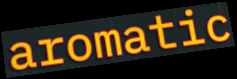
aromatic